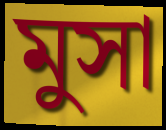
মুসা